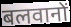
बलवानों